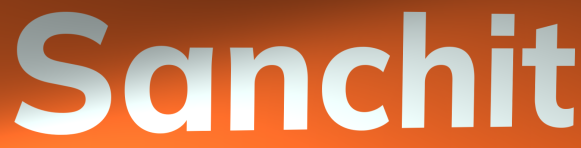
Sanchit